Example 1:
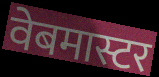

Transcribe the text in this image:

वेबमास्टर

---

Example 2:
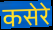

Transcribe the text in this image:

कसेरे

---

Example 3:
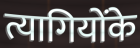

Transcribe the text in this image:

त्यागियोंके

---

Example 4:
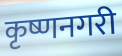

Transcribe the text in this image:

कृष्णनगरी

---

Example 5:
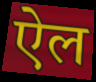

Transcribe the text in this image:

ऐल